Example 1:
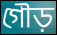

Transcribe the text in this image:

গৌড়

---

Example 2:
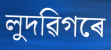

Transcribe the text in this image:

লুদৱিগৰে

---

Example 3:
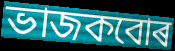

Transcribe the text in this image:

ভাজকবোৰ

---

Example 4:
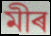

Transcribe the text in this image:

মীৰ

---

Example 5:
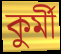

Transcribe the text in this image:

কুৰ্মী